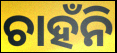
ଚାହଁନି